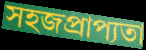
সহজপ্রাপ্যতা